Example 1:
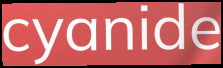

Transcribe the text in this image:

cyanide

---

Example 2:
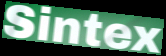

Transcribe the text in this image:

Sintex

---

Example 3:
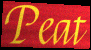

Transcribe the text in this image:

Peat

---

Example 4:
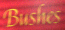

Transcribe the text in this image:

Bushes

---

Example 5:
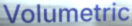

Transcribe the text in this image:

Volumetric